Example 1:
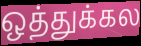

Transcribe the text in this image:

ஒத்துக்கல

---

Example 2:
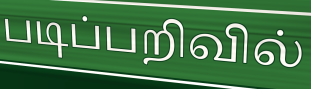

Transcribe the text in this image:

படிப்பறிவில்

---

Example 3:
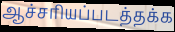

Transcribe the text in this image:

ஆச்சரியப்படத்தக்க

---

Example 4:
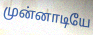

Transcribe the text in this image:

முன்னாடியே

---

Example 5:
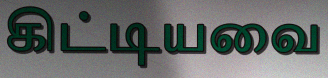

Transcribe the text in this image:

கிட்டியவை